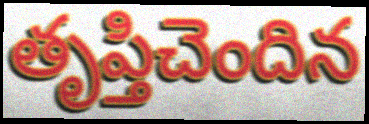
తృప్తిచెందిన